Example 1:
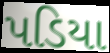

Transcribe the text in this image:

પડિયા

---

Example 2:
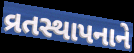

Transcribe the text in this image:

વ્રતસ્થાપનાને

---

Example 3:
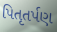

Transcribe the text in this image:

પિતૃતર્પણ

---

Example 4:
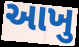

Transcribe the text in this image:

આખુ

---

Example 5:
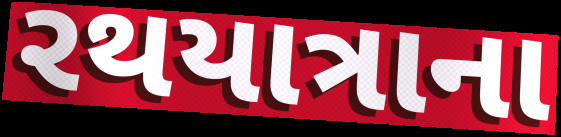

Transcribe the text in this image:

રથયાત્રાના